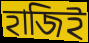
হাজিই